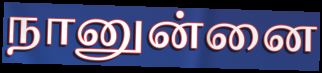
நானுன்னை